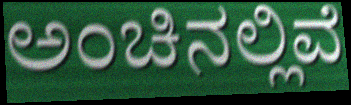
ಅಂಚಿನಲ್ಲಿವೆ